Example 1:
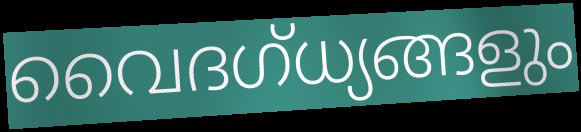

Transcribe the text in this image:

വൈദഗ്ധ്യങ്ങളും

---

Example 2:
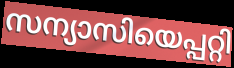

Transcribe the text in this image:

സന്യാസിയെപ്പറ്റി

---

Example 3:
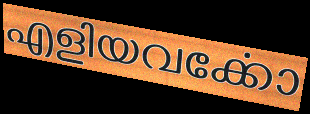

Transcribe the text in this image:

എളിയവൎക്കോ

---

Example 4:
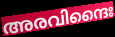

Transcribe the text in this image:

അരവിന്ദൈഃ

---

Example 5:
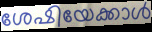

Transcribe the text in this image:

ശേഷിയേക്കാൾ